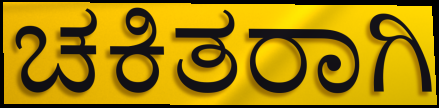
ಚಕಿತರಾಗಿ